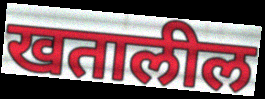
खतालील